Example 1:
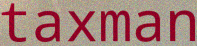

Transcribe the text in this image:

taxman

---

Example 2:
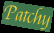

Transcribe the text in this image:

Patchy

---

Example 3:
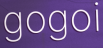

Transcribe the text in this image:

gogoi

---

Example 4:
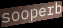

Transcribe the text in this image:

sooperb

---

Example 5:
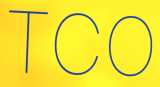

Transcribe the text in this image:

TCO